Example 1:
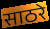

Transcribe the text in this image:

साठरे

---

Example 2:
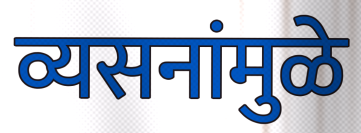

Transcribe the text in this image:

व्यसनांमुळे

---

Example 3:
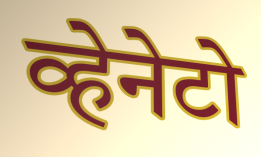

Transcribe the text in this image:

व्हेनेटो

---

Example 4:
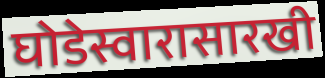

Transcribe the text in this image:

घोडेस्वारासारखी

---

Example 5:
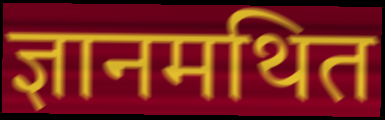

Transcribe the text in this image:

ज्ञानमथित